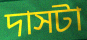
দাসটা